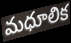
మధూలిక